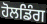
ਹੋਲਡਿੰਗ